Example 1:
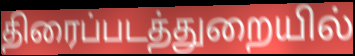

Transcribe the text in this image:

திரைப்படத்துறையில்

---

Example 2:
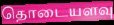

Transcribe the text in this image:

தொடையளவு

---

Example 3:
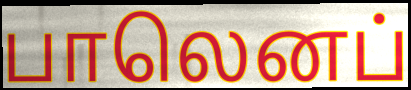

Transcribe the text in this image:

பாலெனப்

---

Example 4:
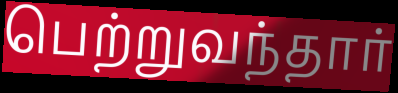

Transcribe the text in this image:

பெற்றுவந்தார்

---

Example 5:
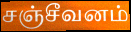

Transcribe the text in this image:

சஞ்சீவனம்